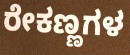
ರೇಕಣ್ಣಗಳ